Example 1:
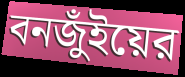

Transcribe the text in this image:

বনজুঁইয়ের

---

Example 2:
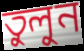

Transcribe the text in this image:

তুলুন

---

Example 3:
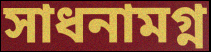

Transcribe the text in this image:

সাধনামগ্ন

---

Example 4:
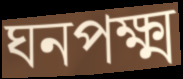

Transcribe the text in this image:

ঘনপক্ষ্ম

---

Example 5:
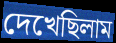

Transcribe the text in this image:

দেখেছিলাম